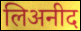
लिअनीद